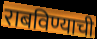
राबविण्याची